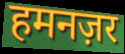
हमनज़र